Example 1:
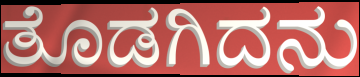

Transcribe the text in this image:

ತೊಡಗಿದನು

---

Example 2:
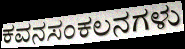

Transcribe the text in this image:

ಕವನಸಂಕಲನಗಳು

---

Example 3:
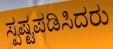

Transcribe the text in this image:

ಸ್ಪಷ್ಟಪಡಿಸಿದರು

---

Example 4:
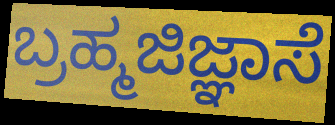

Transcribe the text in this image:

ಬ್ರಹ್ಮಜಿಜ್ಞಾಸೆ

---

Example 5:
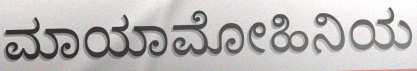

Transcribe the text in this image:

ಮಾಯಾಮೋಹಿನಿಯ